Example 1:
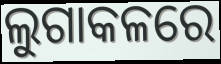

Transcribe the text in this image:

ଲୁଗାକଳରେ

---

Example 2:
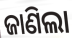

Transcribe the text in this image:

ଜାଣିଲା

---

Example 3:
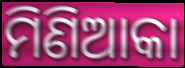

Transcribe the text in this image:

ମିଣିଆକା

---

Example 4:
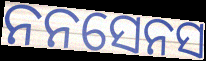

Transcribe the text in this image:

ନନସେନସ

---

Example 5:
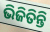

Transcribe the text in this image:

ଭିଜିତିନ୍ତି